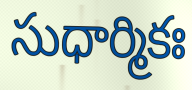
సుధార్మికః